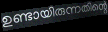
ഉണ്ടായിരുന്നതിന്റെ